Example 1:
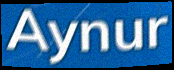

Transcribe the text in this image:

Aynur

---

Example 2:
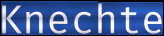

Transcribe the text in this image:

Knechte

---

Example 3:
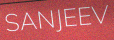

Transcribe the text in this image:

SANJEEV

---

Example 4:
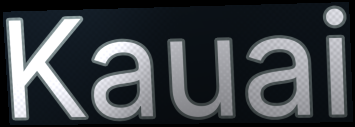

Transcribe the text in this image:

Kauai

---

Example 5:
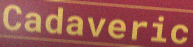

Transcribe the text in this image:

Cadaveric